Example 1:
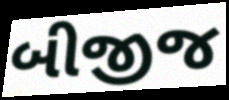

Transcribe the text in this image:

બીજીજ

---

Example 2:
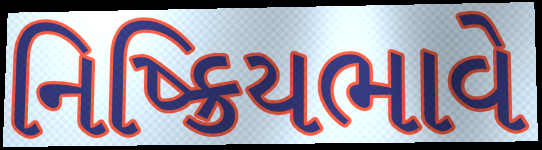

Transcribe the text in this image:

નિષ્ક્રિયભાવે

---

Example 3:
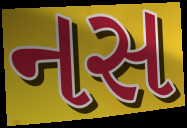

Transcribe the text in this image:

નસ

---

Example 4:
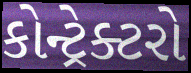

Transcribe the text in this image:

કોન્ટ્રેક્ટરો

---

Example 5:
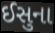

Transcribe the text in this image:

ઈસુના